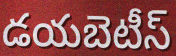
డయబెటీస్